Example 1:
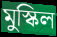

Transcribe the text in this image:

মুস্কিল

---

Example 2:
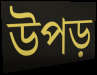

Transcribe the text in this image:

উপড়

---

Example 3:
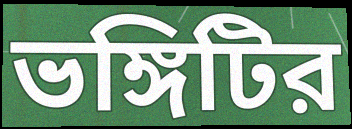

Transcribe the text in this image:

ভঙ্গিটির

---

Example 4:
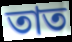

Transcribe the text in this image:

তাত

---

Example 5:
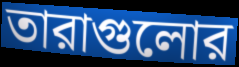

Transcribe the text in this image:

তারাগুলোর